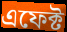
এফেক্ট